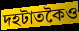
দহটাতকৈও